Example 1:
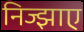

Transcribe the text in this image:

निज्झाए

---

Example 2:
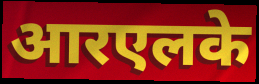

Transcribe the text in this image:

आरएलके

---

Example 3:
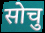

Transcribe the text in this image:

सोचु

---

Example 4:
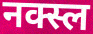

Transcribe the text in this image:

नक्स्ल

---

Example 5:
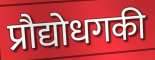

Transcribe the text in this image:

प्रौद्योधगकी